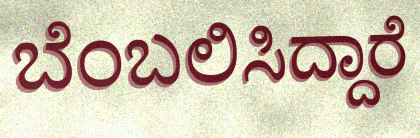
ಬೆಂಬಲಿಸಿದ್ದಾರೆ